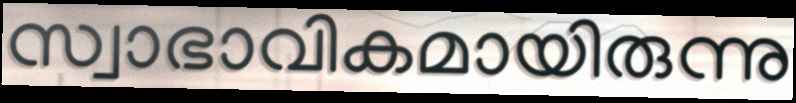
സ്വാഭാവികമായിരുന്നു